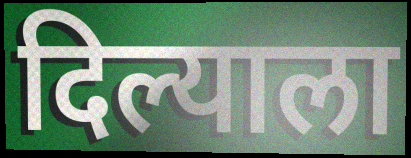
दिल्याला